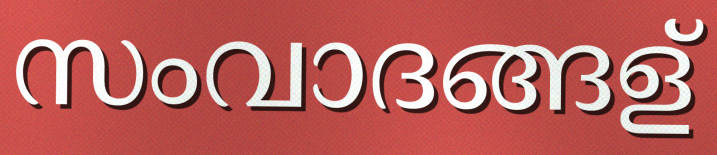
സംവാദങ്ങള്